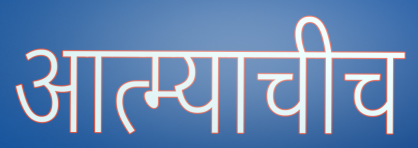
आत्म्याचीच